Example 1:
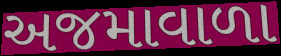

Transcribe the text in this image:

અજમાવાળા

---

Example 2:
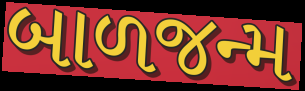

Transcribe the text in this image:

બાળજન્મ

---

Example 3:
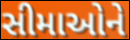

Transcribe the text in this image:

સીમાઓને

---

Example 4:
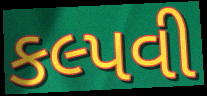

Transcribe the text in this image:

કલ્પવી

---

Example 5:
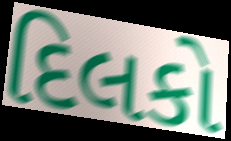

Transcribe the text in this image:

દિલકો